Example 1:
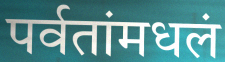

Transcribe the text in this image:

पर्वतांमधलं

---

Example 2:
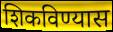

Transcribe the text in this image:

शिकविण्यास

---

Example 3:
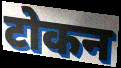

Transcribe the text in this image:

टोकन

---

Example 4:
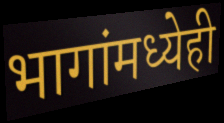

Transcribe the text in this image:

भागांमध्येही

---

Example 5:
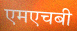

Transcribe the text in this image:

एमएचबी